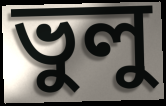
ভুলু